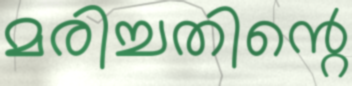
മരിച്ചതിന്റെ